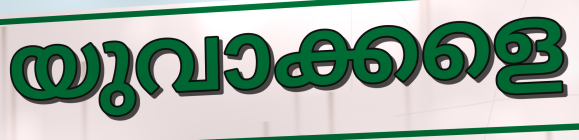
യുവാക്കളെ